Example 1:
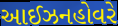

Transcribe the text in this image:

આઈઝનહોવરે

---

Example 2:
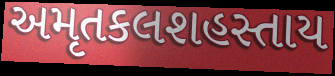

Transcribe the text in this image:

અમૃતકલશહસ્તાય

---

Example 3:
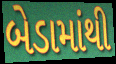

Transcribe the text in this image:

બેડામાંથી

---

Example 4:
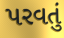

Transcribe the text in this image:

પરવતું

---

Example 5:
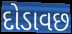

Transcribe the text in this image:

દોડાવછ